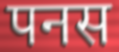
पनस